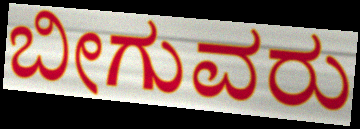
ಬೀಗುವರು